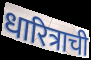
धारित्राची